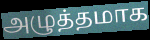
அழுத்தமாக